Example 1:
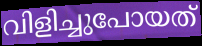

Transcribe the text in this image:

വിളിച്ചുപോയത്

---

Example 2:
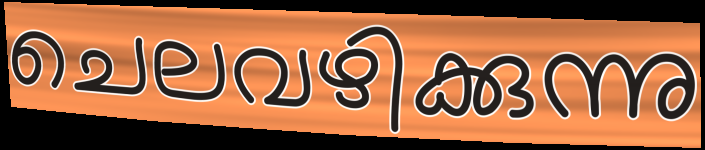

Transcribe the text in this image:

ചെലവഴിക്കുന്നു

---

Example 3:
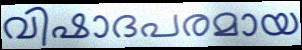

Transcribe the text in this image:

വിഷാദപരമായ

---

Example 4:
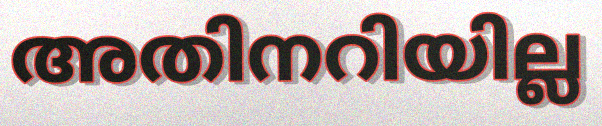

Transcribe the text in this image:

അതിനറിയില്ല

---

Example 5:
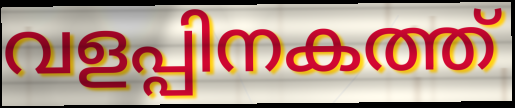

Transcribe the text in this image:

വളപ്പിനകത്ത്